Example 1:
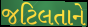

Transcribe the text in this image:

જટિલતાને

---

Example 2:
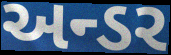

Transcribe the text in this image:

અન્ડર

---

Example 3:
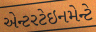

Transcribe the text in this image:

એન્ટરટેઇનમેન્ટે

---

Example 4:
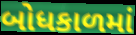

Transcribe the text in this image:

બોધકાળમાં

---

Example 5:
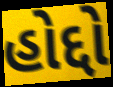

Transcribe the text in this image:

હોદ્દો